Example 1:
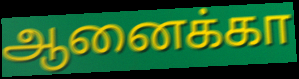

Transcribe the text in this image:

ஆனைக்கா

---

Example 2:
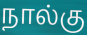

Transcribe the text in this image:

நால்கு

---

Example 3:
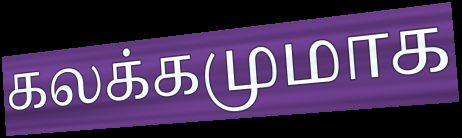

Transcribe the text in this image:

கலக்கமுமாக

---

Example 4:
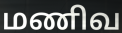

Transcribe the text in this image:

மணிவ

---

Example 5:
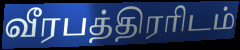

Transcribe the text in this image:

வீரபத்திரரிடம்